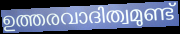
ഉത്തരവാദിത്വമുണ്ട്